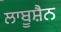
ਲਾਬੂਸ਼ੈਨ